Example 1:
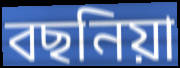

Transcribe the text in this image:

বছনিয়া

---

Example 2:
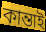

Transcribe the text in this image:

কান্তাই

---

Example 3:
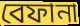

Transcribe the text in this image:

বেফানা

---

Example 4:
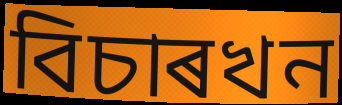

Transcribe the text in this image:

বিচাৰখন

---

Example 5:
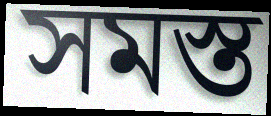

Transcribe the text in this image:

সমস্ত